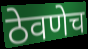
ठेवणेच